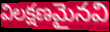
విలక్షణమైనవి